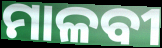
ମାଳବୀ